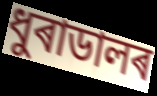
ধুৰাডালৰ